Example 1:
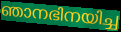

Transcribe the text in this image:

ഞാനഭിനയിച്ച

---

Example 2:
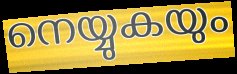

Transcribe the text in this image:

നെയ്യുകയും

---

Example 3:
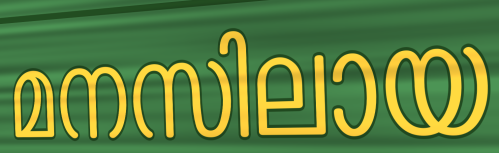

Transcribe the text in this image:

മനസിലായ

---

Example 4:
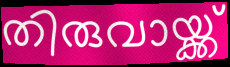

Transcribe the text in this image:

തിരുവായ്ക്ക്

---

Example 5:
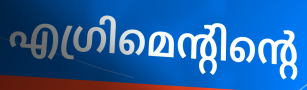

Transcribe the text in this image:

എഗ്രിമെന്റിന്റെ